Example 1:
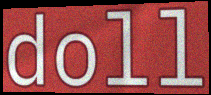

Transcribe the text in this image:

doll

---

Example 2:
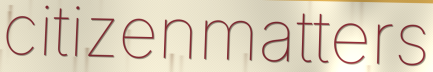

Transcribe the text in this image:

citizenmatters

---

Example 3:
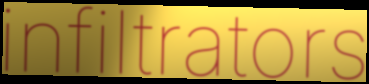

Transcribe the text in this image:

infiltrators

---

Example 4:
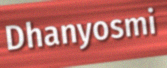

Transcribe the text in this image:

Dhanyosmi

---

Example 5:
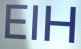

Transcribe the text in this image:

EIH